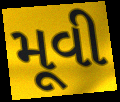
મૂવી